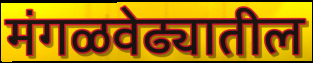
मंगळवेढ्यातील